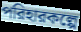
পরিহারকল্পে